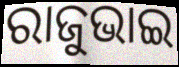
ରାଜୁଭାଇ